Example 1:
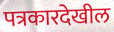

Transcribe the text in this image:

पत्रकारदेखील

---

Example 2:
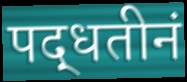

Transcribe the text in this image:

पद्धतीनं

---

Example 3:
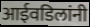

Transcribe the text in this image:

आईवडिलांनी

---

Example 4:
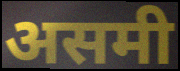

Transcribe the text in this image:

असमी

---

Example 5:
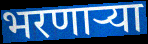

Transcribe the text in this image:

भरणाऱ्या